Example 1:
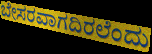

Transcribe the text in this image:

ಬೇಸರವಾಗದಿರಲೆಂದು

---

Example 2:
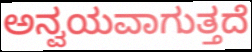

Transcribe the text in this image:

ಅನ್ವಯವಾಗುತ್ತದೆ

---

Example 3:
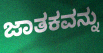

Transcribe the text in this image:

ಜಾತಕವನ್ನು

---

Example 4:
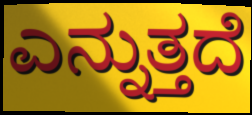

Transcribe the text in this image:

ಎನ್ನುತ್ತದೆ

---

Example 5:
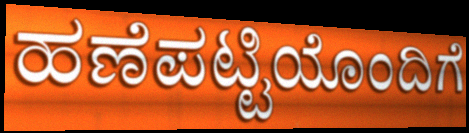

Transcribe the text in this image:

ಹಣೆಪಟ್ಟಿಯೊಂದಿಗೆ